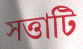
সত্তাটি